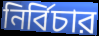
নির্বিচার